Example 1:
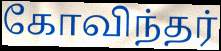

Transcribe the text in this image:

கோவிந்தர்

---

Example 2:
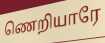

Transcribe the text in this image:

ணெறியாரே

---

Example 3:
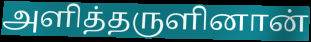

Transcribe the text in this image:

அளித்தருளினான்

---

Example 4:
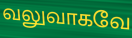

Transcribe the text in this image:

வலுவாகவே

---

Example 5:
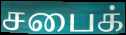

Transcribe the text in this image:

சபைக்